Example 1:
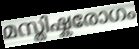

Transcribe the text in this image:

മസ്തിഷ്കരോഗം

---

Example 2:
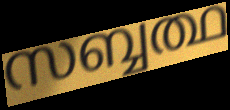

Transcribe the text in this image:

സബ്ബത്ഥ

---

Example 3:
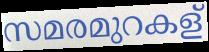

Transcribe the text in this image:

സമരമുറകള്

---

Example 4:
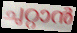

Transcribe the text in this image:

ചുറ്റാൻ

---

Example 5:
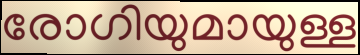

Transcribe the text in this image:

രോഗിയുമായുള്ള